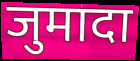
जुमादा